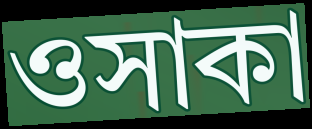
ওসাকা